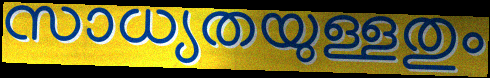
സാധ്യതയുള്ളതും